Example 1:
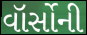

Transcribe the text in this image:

વૉર્સોની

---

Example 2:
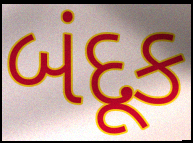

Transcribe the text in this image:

બંદૂક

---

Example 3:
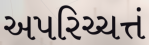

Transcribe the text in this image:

અપરિચ્ચત્તં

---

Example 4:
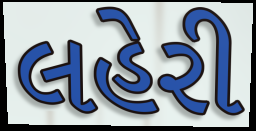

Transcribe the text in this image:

લહેરી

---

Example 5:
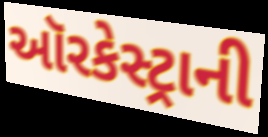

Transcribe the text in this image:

ઑરકેસ્ટ્રાની